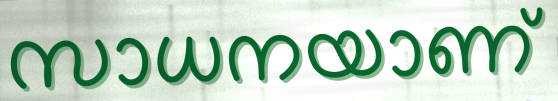
സാധനയാണ്